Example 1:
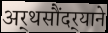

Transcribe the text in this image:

अर्थसौंदर्याने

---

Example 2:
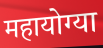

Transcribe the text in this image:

महायोग्या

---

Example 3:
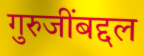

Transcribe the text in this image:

गुरुजींबद्दल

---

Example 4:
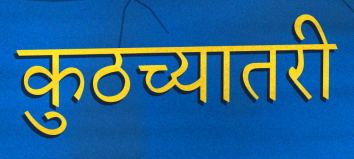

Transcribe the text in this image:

कुठच्यातरी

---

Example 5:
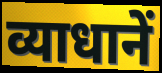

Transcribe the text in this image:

व्याधानें